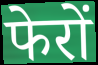
फेरों